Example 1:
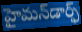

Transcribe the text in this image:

హైమన్‌డార్ఫ్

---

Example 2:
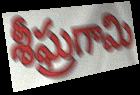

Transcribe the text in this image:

శీఘ్రగామి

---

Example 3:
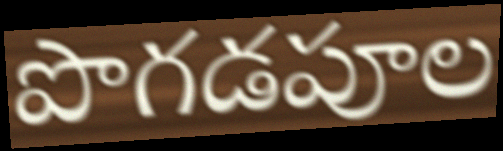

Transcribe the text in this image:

పొగడపూల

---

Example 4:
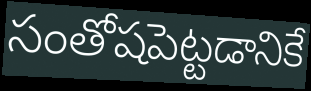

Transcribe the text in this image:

సంతోషపెట్టడానికే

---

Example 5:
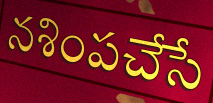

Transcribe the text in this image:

నశింపచేసే